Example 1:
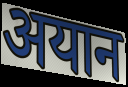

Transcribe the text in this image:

अयान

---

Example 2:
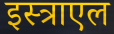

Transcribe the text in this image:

इस्त्राएल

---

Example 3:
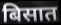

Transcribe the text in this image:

बिसात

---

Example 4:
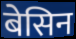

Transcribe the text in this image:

बेसिन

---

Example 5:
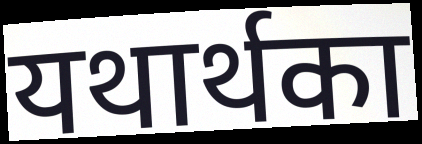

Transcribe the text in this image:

यथार्थका